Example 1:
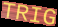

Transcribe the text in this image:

TRIG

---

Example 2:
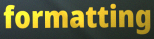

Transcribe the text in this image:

formatting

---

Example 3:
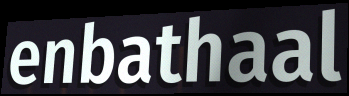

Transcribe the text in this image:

enbathaal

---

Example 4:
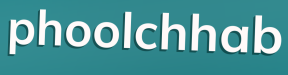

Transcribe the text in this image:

phoolchhab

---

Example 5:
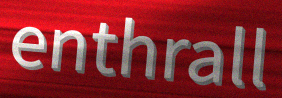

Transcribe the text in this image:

enthrall